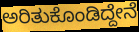
ಅರಿತುಕೊಂಡಿದ್ದೇನೆ